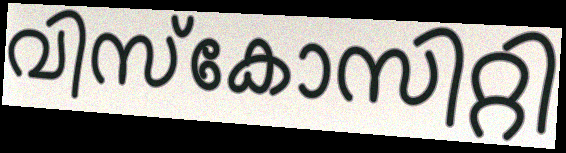
വിസ്കോസിറ്റി